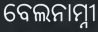
ବେଲନାମ୍ନୀ